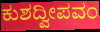
ಕುಶದ್ವೀಪವಂ